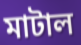
মাটাল